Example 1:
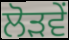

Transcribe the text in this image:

ਲੋੜਵੇਂ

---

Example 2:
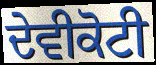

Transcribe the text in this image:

ਦੇਵੀਕੋਟੀ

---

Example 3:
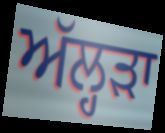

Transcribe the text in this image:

ਅੱਲ੍ਹੜਾ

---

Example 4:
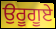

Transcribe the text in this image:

ਉਰੂਗੂਏ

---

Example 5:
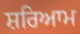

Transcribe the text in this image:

ਸ਼ਰਿਆਮ